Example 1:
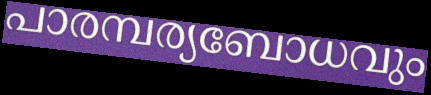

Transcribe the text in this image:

പാരമ്പര്യബോധവും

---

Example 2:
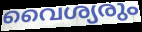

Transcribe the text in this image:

വൈശ്യരും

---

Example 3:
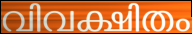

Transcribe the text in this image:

വിവക്ഷിതം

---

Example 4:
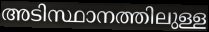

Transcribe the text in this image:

അടിസ്ഥാനത്തിലുള്ള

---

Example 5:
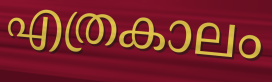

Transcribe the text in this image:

എത്രകാലം